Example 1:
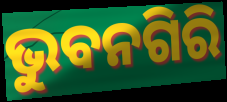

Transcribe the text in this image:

ଭୁବନଗିରି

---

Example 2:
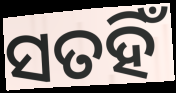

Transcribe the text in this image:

ସତହିଁ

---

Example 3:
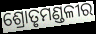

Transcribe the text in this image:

ଶ୍ରୋତୃମଣ୍ଡଳୀର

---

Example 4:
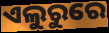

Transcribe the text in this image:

ଏଲୁରୁରେ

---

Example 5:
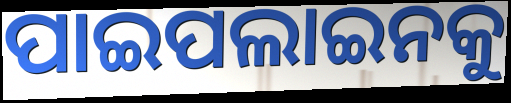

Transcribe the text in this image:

ପାଇପଲାଇନକୁ